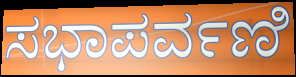
ಸಭಾಪರ್ವಣಿ